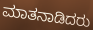
ಮಾತನಾಡಿದರು